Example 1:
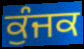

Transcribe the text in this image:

ਕੁੰਜਕ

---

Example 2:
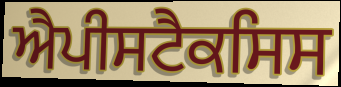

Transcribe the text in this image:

ਐਪੀਸਟੈਕਸਿਸ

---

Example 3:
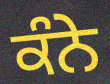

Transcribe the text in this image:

ਕੰਨੇ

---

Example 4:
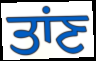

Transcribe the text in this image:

ਤਾਂਣ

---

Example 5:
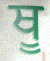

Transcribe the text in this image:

ਥੂ